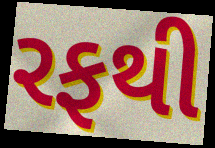
રફથી